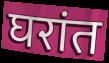
घरांत